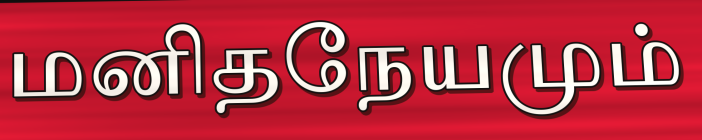
மனிதநேயமும்